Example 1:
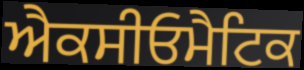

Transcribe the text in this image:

ਐਕਸੀਓਮੈਟਿਕ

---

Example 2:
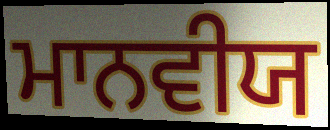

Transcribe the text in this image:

ਮਾਨਵੀਯ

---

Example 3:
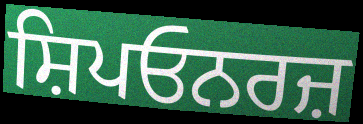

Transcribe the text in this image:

ਸ਼ਿਪਓਨਰਜ਼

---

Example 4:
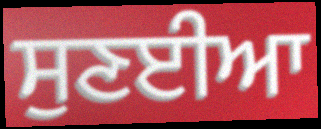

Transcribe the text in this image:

ਸੁਣਈਆ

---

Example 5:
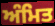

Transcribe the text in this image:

ਅੰਮਿਤ